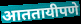
आततायीपणे